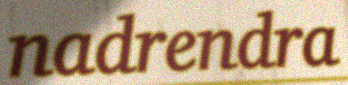
nadrendra